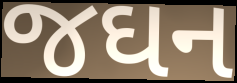
જઘન